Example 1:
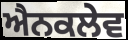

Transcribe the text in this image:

ਐਨਕਲੇਵ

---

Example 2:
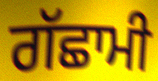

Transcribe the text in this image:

ਗੱਛਾਮੀ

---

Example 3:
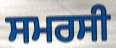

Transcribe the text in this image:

ਸਮਰਸੀ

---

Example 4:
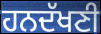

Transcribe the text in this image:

ਹਨਦੱਖਣੀ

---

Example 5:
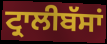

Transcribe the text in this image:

ਟ੍ਰਾਲੀਬੱਸਾਂ